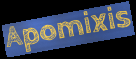
Apomixis